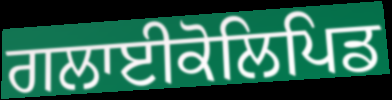
ਗਲਾਈਕੋਲਿਪਿਡ